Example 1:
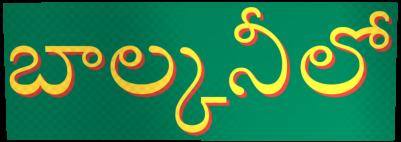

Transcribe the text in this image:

బాల్కనీలో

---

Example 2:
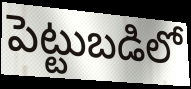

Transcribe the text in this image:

పెట్టుబడిలో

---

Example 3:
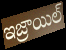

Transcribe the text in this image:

ఇజ్రాయిల్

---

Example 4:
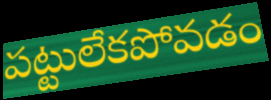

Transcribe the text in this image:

పట్టులేకపోవడం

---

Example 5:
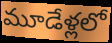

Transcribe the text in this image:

మూడేళ్లలో